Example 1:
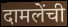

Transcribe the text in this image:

दामलेंची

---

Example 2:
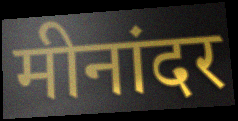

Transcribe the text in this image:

मीनांदर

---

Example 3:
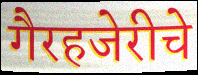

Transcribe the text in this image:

गैरहजेरीचे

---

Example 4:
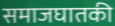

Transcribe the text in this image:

समाजघातकी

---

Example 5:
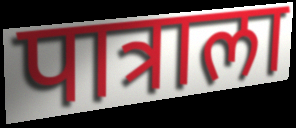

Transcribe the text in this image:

पात्राला